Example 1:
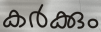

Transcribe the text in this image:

കർക്കും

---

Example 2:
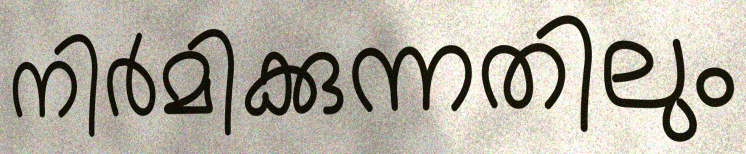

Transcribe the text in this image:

നിർമിക്കുന്നതിലും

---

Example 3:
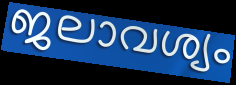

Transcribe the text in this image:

ജലാവശ്യം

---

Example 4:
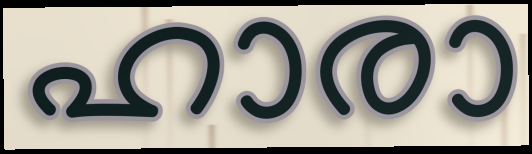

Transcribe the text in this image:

ഹാരാ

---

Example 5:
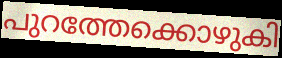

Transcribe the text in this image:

പുറത്തേക്കൊഴുകി